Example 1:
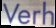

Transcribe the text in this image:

Verh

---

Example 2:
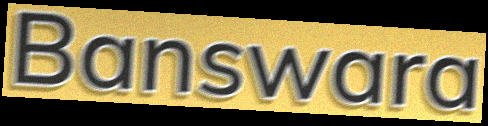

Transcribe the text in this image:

Banswara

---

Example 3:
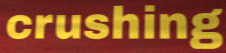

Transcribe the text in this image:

crushing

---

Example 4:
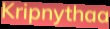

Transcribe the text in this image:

Kripnythaa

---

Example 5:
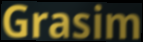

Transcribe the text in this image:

Grasim